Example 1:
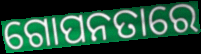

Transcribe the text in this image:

ଗୋପନତାରେ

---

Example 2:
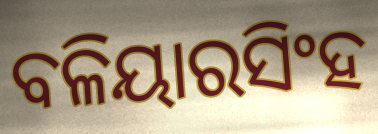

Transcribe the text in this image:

ବଳିୟାରସିଂହ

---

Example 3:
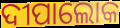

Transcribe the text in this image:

ଦୀପାଲୋକ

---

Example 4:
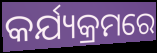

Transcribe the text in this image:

କର୍ଯ୍ୟକ୍ରମରେ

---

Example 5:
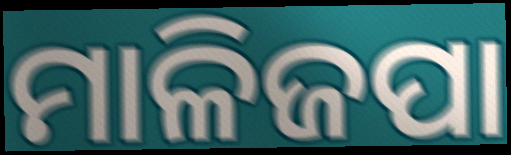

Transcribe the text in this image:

ମାଳିଜପା